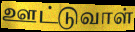
ஊட்டுவாள்